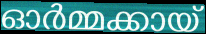
ഓർമ്മക്കായ്